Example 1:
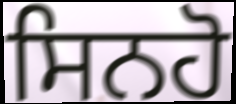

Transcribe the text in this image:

ਸਿਨਹੋ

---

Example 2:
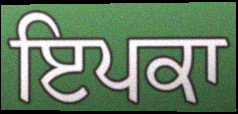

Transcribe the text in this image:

ਇਪਕਾ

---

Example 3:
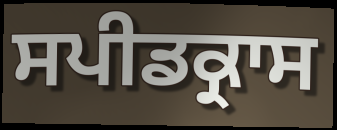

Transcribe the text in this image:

ਸਪੀਡਕ੍ਰਾਸ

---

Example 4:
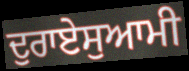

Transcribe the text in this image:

ਦੁਰਾਏਸੁਆਮੀ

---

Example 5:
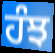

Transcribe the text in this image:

ਹੰਝ